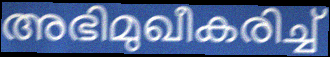
അഭിമുഖീകരിച്ച്